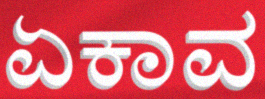
ಏಕಾವ